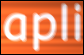
apli